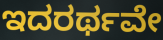
ಇದರರ್ಥವೇ